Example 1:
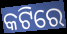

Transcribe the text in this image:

କଟିରେ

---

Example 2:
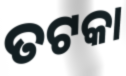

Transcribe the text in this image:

ତଟକା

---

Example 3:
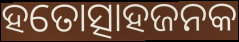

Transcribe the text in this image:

ହତୋତ୍ସାହଜନକ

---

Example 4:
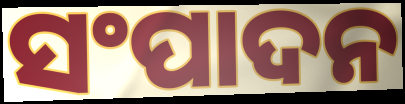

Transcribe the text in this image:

ସଂପାଦନ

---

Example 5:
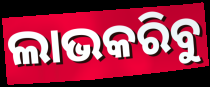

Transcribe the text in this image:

ଲାଭକରିବୁ